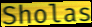
Sholas